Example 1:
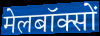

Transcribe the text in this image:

मेलबॉक्सों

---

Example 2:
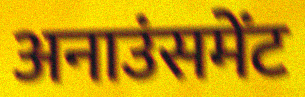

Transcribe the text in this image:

अनाउंसमेंट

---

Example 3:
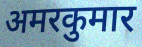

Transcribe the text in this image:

अमरकुमार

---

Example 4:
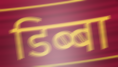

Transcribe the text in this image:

डिब्बा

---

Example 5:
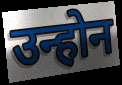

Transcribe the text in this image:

उन्होन